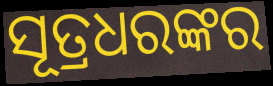
ସୂତ୍ରଧରଙ୍କର